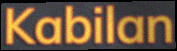
Kabilan